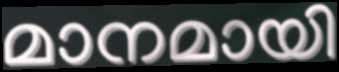
മാനമായി